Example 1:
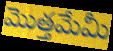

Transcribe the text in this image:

మొత్తమేమీ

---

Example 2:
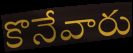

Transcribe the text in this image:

కొనేవారు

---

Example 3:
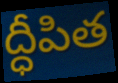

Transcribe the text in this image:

ద్ధీపిత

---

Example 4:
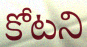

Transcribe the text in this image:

కోటని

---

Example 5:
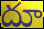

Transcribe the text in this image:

దూ